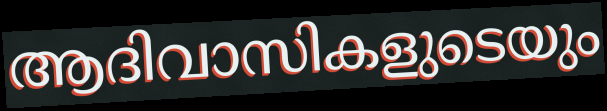
ആദിവാസികളുടെയും